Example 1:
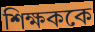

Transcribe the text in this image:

শিক্ষককে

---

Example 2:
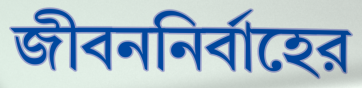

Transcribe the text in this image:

জীবননির্বাহের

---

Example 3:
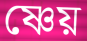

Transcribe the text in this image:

ষ্ণেয়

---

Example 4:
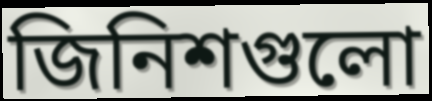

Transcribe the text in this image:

জিনিশগুলো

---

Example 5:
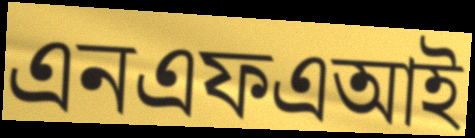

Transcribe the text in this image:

এনএফএআই